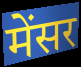
मेंसर